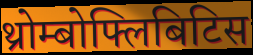
थ्रोम्बोफ्लिबिटिस